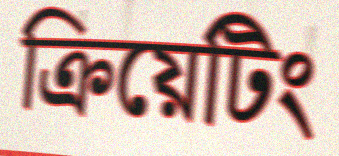
ক্রিয়েটিং